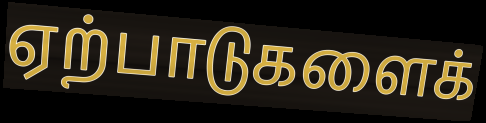
ஏற்பாடுகளைக்